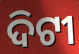
ଦିଟୀ